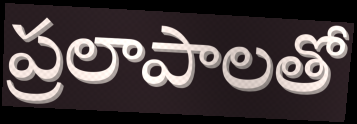
ప్రలాపాలతో